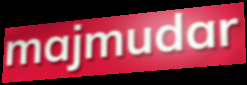
majmudar